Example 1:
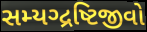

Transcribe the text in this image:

સમ્યગ્દ્રષ્ટિજીવો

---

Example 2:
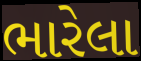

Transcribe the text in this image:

ભારેલા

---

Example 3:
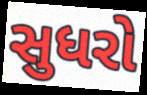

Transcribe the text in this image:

સુધરો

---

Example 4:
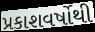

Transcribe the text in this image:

પ્રકાશવર્ષોથી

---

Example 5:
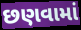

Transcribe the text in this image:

છણવામાં